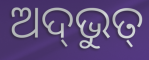
ଅଦ୍‌ଭୁତ୍